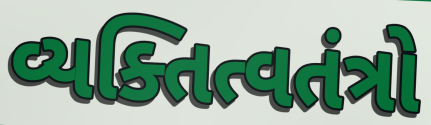
વ્યક્તિત્વતંત્રો